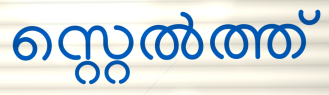
സ്റ്റെൽത്ത്